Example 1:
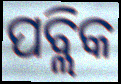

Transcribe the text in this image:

ପବ୍ଲିକ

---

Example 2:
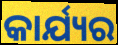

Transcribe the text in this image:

କାର୍ଯ୍ୟର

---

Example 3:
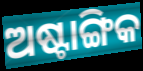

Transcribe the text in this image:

ଅଷ୍ଟାଙ୍ଗିକ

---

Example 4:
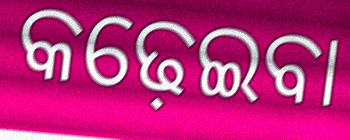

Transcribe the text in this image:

କଢ଼େଇବା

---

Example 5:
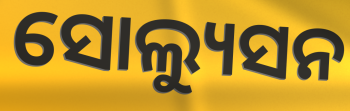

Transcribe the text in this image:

ସୋଲ୍ୟୁସନ